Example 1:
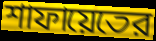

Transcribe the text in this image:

শাফায়েতের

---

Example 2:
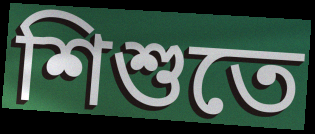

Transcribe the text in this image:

শিশুতে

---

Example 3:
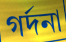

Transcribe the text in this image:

গর্দনা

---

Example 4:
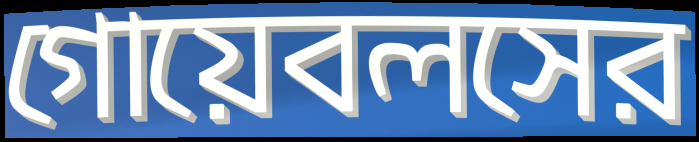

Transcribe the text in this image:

গোয়েবলসের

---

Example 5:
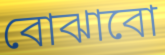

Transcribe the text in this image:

বোঝাবো